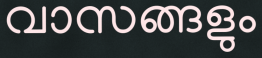
വാസങ്ങളും